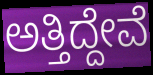
ಅತ್ತಿದ್ದೇವೆ